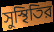
সুস্থিতির